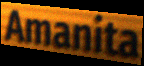
Amanita